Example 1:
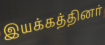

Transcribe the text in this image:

இயக்கத்தினர்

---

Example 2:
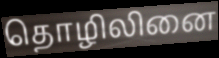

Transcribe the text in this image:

தொழிலினை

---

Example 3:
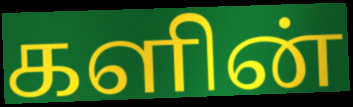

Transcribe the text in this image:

களின்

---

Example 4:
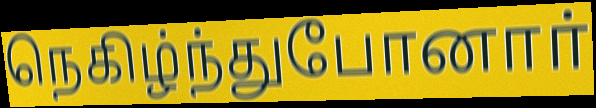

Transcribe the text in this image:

நெகிழ்ந்துபோனார்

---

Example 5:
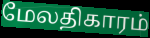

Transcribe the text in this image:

மேலதிகாரம்